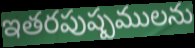
ఇతరపుష్పములను